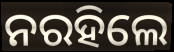
ନରହିଲେ